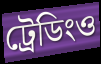
ট্রেডিংও